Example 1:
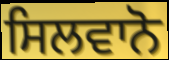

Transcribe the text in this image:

ਸਿਲਵਾਨੋ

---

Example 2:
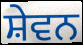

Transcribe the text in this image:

ਸ਼ੇਵਨ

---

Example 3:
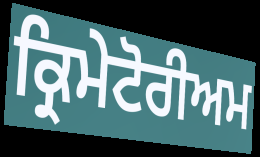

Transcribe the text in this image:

ਕ੍ਰਿਮੇਟੋਰੀਅਮ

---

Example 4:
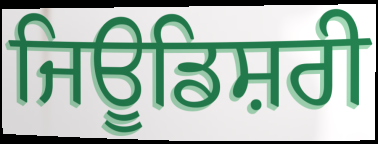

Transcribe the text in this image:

ਜਿਊਡਿਸ਼ਰੀ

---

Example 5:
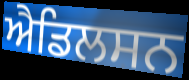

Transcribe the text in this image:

ਐਡਿਲਸਨ